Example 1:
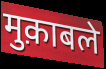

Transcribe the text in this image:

मुक़ाबले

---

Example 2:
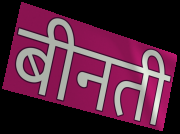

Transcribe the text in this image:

बीनती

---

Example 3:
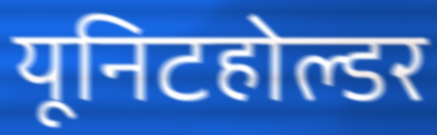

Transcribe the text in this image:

यूनिटहोल्डर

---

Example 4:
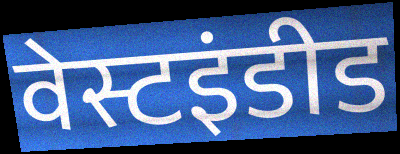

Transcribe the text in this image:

वेस्टइंडीड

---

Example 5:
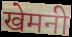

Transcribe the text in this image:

खेमनी